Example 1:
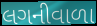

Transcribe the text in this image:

લગનીવાળા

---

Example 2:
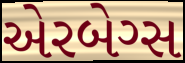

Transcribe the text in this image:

એરબેગ્સ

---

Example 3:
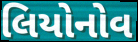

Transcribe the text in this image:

લિયોનોવ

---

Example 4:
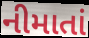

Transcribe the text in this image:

નીમાતાં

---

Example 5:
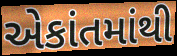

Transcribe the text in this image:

એકાંતમાંથી